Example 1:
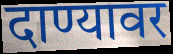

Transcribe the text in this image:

दाण्यावर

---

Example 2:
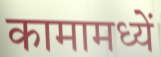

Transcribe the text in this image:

कामामध्यें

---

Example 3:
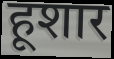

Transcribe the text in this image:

हूशार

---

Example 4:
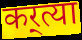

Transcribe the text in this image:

कर्त्या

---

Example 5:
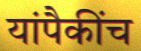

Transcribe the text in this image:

यांपैकींच